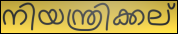
നിയന്ത്രിക്കല്